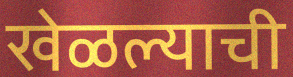
खेळल्याची